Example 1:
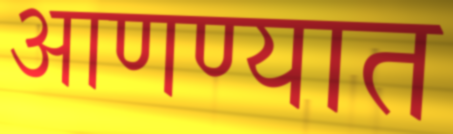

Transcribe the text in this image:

आणण्यात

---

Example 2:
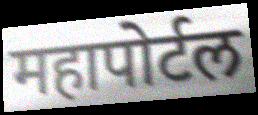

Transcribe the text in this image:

महापोर्टल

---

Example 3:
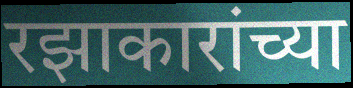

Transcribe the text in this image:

रझाकारांच्या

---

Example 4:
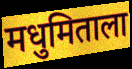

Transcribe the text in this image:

मधुमिताला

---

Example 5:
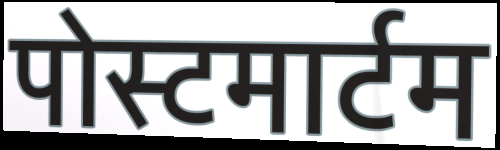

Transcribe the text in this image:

पोस्टमार्टम